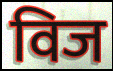
विज